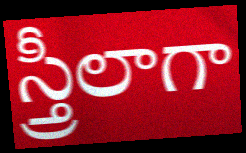
స్త్రీలాగా